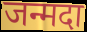
जन्मदा